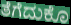
ತೆಗೆದುಕೊ